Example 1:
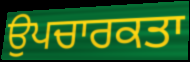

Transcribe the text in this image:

ਉਪਚਾਰਕਤਾ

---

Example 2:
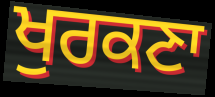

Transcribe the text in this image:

ਖੁਰਕਣਾ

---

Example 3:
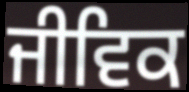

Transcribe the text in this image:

ਜੀਵਿਕ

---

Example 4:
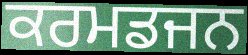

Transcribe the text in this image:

ਕਰਮਡਜਨ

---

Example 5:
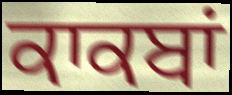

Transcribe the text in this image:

ਕਾਕਬਾਂ